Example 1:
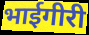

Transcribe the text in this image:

भाईगीरी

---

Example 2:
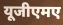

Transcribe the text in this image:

यूजीएमए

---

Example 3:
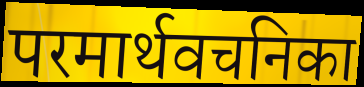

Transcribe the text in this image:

परमार्थवचनिका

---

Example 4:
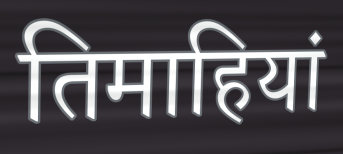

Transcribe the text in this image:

तिमाहियां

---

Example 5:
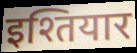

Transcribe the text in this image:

इश्तियार